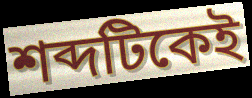
শব্দটিকেই